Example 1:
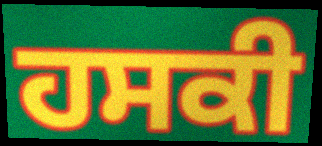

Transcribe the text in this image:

ਹਸਕੀ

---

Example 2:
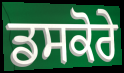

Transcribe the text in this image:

ਡਸਕੋਰੇ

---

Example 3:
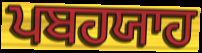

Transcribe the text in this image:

ਪਬਹਯਾਹ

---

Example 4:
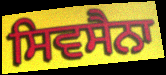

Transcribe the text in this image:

ਸਿਵਸੈਨਾ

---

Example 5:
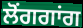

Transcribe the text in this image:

ਲੋਂਗਗਾਂਗ